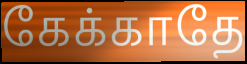
கேக்காதே